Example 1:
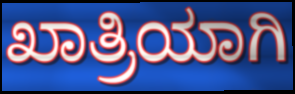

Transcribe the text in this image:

ಖಾತ್ರಿಯಾಗಿ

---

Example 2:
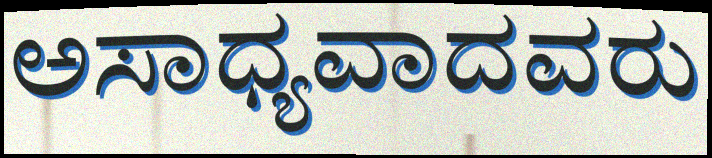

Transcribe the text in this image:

ಅಸಾಧ್ಯವಾದವರು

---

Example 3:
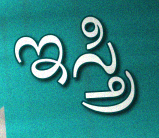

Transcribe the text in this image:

ಇಸ್ತ್ರಿ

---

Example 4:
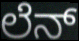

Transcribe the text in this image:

ಲೆನ್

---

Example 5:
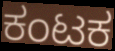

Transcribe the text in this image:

ಕಂಟಕ